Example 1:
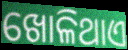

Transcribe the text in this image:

ଖୋଳିଥାଏ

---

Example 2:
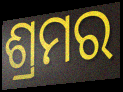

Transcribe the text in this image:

ଶ୍ରମର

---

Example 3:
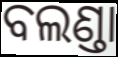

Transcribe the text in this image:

ବଲଣ୍ଡା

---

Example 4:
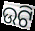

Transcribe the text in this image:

ଉଟି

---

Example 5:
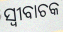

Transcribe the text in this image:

ସ୍ବୀବାଚକ